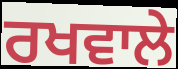
ਰਖਵਾਲੇ